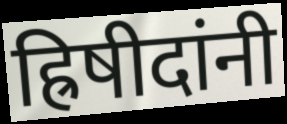
ह्रिषीदांनी